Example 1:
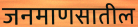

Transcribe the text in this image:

जनमाणसातील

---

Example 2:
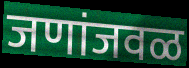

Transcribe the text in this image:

जणांजवळ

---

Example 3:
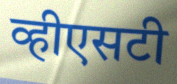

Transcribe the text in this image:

व्हीएसटी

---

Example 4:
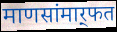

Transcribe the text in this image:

माणसांमार्फत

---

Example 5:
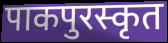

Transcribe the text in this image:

पाकपुरस्कृत